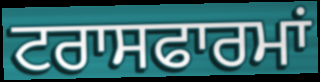
ਟਰਾਸਫਾਰਮਾਂ